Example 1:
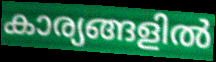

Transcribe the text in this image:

കാര്യങ്ങളിൽ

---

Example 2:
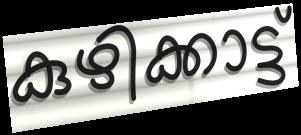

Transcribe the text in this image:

കുഴിക്കാട്ട്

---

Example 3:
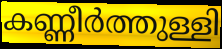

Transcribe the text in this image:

കണ്ണീർത്തുള്ളി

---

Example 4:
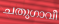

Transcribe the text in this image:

ചതുഗാവീ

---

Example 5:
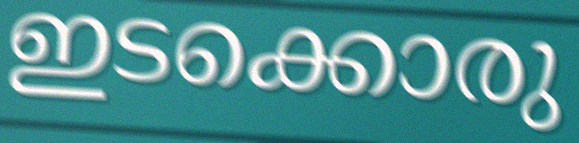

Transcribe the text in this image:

ഇടക്കൊരു